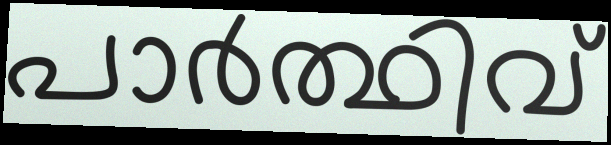
പാർത്ഥിവ്